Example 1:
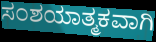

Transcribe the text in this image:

ಸಂಶಯಾತ್ಮಕವಾಗಿ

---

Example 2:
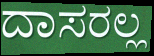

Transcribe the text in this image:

ದಾಸರಲ್ಲ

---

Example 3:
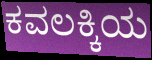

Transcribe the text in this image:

ಕವಲಕ್ಕಿಯ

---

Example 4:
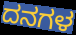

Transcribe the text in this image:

ದನಗಳ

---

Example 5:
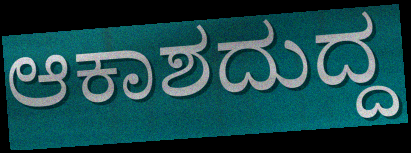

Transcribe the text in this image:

ಆಕಾಶದುದ್ದ